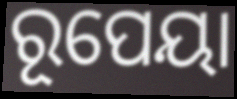
ରୂପେୟା